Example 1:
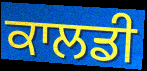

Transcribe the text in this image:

ਕਾਲਡੀ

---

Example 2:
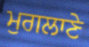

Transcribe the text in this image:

ਮੁਗਲਾਣੇ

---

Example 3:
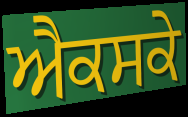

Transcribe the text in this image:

ਐਕਸਕੇ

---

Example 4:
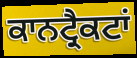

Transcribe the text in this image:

ਕਾਨਟ੍ਰੈਕਟਾਂ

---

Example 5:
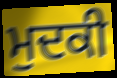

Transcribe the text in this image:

ਮੁਦਕੀ